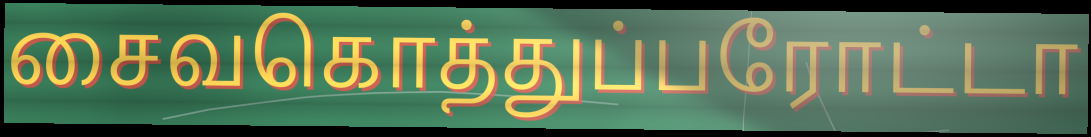
சைவகொத்துப்பரோட்டா